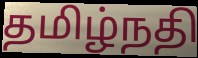
தமிழ்நதி